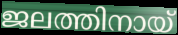
ജലത്തിനായ്